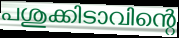
പശുക്കിടാവിന്റെ